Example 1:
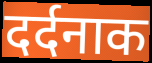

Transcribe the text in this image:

दर्दनाक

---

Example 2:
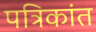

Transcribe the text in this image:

पत्रिकांत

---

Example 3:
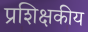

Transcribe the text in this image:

प्रशिक्षकीय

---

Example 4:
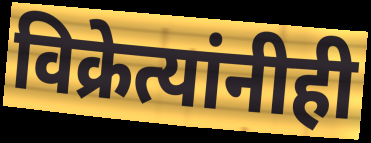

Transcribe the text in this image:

विक्रेत्यांनीही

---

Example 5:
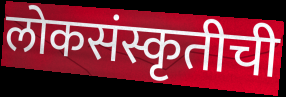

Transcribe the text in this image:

लोकसंस्कृतीची